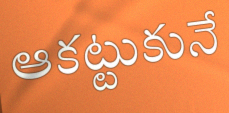
ఆకట్టుకునే